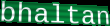
bhaltan